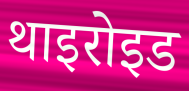
थाइरोइड